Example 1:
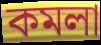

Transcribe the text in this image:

কমলা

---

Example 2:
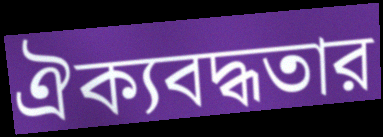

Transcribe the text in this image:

ঐক্যবদ্ধতার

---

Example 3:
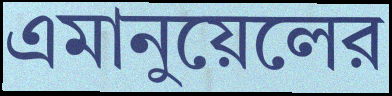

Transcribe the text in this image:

এমানুয়েলের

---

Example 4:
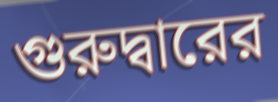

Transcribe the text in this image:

গুরুদ্বারের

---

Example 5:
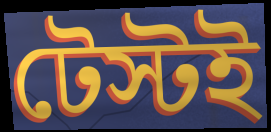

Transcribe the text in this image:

টেস্টই